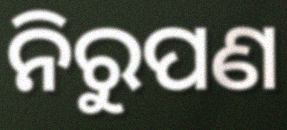
ନିରୁପଣ